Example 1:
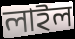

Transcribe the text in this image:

লাইল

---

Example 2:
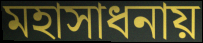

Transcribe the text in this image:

মহাসাধনায়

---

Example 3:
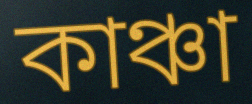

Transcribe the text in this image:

কাঞ্চা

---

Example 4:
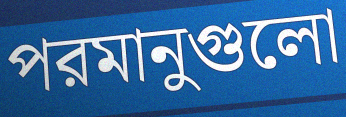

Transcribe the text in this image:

পরমানুগুলো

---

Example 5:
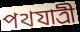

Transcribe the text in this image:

পথযাত্রী